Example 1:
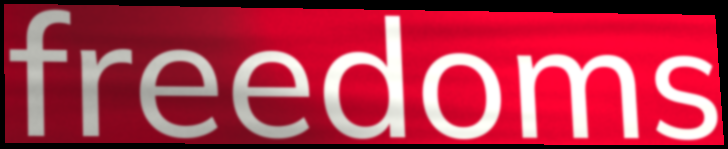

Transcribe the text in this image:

freedoms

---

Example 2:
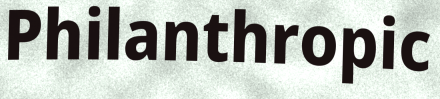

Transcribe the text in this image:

Philanthropic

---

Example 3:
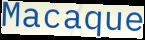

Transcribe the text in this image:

Macaque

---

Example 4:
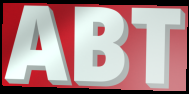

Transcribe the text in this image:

ABT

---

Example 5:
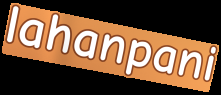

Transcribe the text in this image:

lahanpani